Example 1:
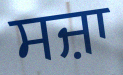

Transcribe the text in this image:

ਸਜ਼ਾ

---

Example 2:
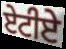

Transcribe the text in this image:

ਏਟੀਏ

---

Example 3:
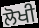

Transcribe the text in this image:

ਲੋਖੀ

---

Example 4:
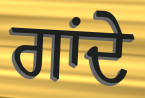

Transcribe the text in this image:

ਗਾਂਦੇ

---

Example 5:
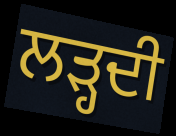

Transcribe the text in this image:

ਲੜ੍ਹਦੀ